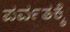
ಪರ್ವತಕ್ಕೆ